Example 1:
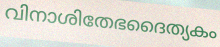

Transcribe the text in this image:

വിനാശിതേഭദൈത്യകം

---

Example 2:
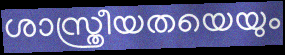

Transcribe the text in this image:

ശാസ്ത്രീയതയെയും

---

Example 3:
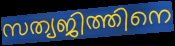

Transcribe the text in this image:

സത്യജിത്തിനെ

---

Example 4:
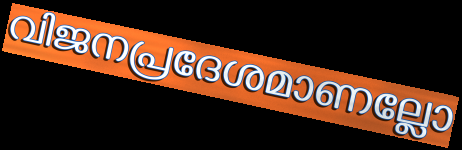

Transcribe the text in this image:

വിജനപ്രദേശമാണല്ലോ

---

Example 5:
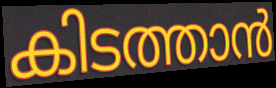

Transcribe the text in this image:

കിടത്താൻ